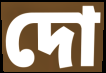
দো